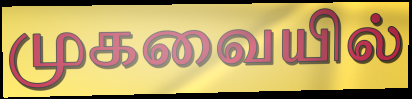
முகவையில்